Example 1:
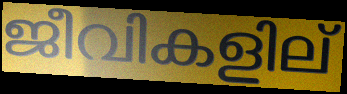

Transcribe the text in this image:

ജീവികളില്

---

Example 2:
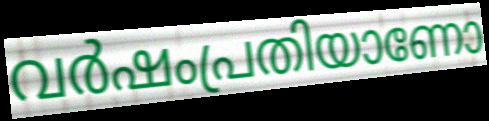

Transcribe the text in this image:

വർഷംപ്രതിയാണോ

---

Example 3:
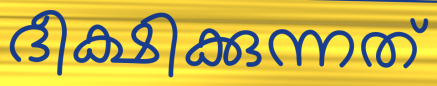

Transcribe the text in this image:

ദീക്ഷിക്കുന്നത്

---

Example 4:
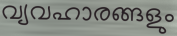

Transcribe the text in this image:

വ്യവഹാരങ്ങളും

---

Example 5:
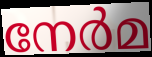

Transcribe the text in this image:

നേർമ